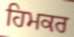
ਹਿਮਕਰ